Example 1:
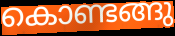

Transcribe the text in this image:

കൊണ്ടങ്ങു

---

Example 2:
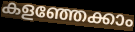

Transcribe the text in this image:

കളഞ്ഞേക്കാം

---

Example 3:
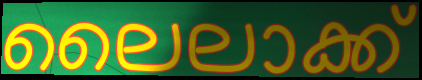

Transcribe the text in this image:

ലൈലാക്ക്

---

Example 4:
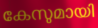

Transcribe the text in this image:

കേസുമായി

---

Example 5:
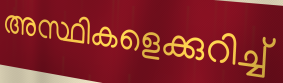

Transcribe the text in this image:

അസ്ഥികളെക്കുറിച്ച്